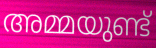
അമ്മയുണ്ട്